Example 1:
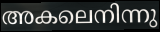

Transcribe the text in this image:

അകലെനിന്നു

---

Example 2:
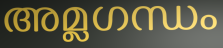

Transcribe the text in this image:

അമ്ലഗന്ധം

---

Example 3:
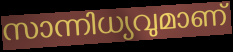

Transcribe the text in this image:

സാന്നിധ്യവുമാണ്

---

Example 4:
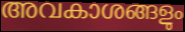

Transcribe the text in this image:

അവകാശങ്ങളും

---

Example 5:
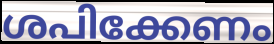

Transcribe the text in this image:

ശപിക്കേണം